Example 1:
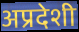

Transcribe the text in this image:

अप्रदेशी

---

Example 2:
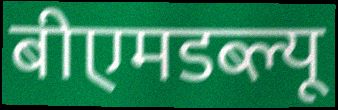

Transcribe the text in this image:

बीएमडब्ल्यू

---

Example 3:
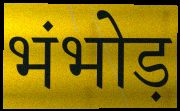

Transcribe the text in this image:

भंभोड़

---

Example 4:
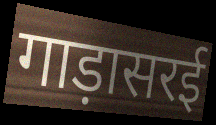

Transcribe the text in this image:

गाड़ासरई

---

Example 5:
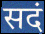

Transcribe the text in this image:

सदं